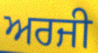
ਅਰਜੀ